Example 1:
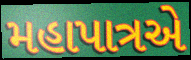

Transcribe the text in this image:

મહાપાત્રએ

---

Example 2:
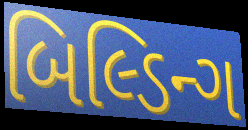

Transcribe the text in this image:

બિલ્ડિન્ગ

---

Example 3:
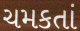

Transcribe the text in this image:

ચમકતાં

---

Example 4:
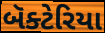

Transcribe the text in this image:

બૅક્ટેરિયા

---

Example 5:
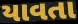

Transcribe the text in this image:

યાવતા